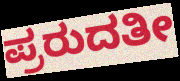
ಪ್ರರುದತೀ